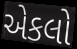
એકલો